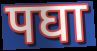
पघा